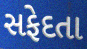
સફેદતા